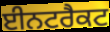
ਈਨਟਰੈਕਟ